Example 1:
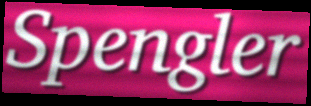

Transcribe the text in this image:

Spengler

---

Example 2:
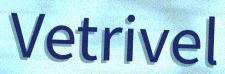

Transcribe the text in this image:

Vetrivel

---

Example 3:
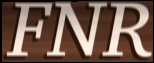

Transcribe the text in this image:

FNR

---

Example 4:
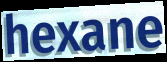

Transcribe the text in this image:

hexane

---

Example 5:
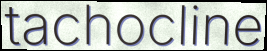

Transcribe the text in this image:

tachocline